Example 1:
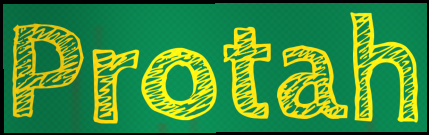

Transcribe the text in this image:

Protah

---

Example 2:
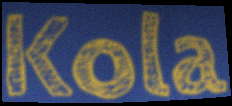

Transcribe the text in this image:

Kola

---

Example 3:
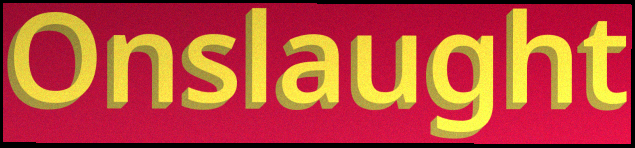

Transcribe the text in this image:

Onslaught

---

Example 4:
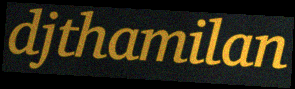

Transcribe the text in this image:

djthamilan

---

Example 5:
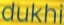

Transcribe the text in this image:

dukhi